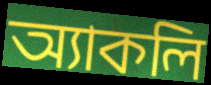
অ্যাকলি